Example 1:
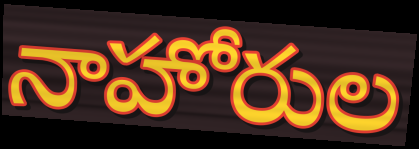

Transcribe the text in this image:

నాహోరుల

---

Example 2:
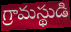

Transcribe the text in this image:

గ్రామస్థుడి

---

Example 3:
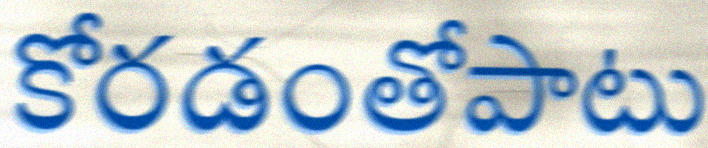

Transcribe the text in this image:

కోరడంతోపాటు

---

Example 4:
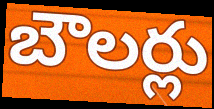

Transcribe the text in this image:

బౌలర్లు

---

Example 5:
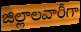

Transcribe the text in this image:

జిల్లాలవారీగా